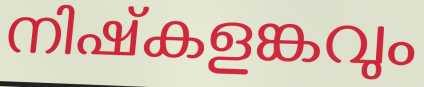
നിഷ്‌കളങ്കവും